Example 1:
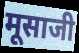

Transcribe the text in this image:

मूसाजी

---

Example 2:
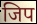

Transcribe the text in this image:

जिप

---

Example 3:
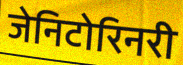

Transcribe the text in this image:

जेनिटोरिनरी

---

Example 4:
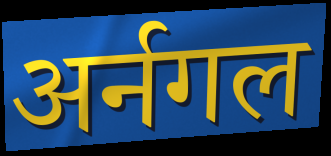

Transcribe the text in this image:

अर्नगल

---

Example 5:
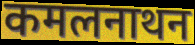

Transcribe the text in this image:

कमलनाथन